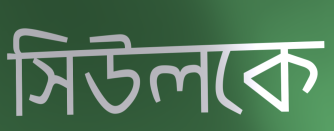
সিউলকে